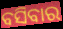
ବସିବାର